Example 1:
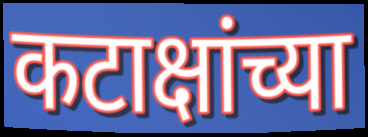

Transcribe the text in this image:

कटाक्षांच्या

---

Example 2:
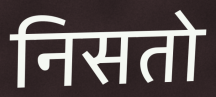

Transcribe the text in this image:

निसतो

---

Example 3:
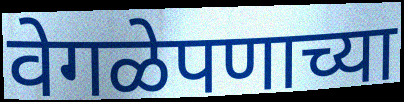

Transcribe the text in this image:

वेगळेपणाच्या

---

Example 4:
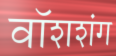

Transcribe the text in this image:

वॉशशंग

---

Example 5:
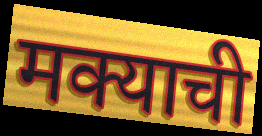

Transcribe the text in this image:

मक्याची